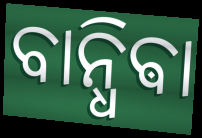
ବାନ୍ଧିଵା